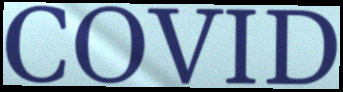
COVID